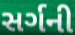
સર્ગની